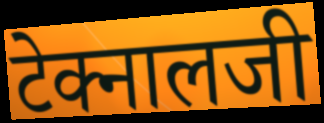
टेक्नालजी